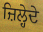
ਜ਼ਿਲ੍ਹੇਦੇ